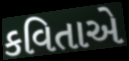
કવિતાએ